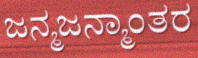
ಜನ್ಮಜನ್ಮಾಂತರ